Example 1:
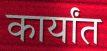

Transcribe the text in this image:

कार्यांत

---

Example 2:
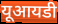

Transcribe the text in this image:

यूआयडी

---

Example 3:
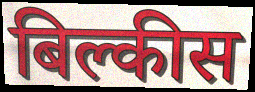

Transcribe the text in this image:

बिल्कीस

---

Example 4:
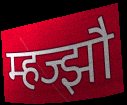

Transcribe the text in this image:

म्हज्झौ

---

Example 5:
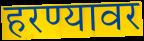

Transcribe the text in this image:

हरण्यावर